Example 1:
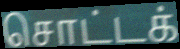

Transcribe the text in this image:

சொட்டக்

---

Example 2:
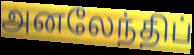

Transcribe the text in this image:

அனலேந்திப்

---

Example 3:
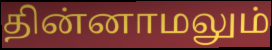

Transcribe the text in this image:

தின்னாமலும்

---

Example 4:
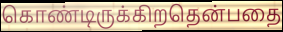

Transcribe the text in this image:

கொண்டிருக்கிறதென்பதை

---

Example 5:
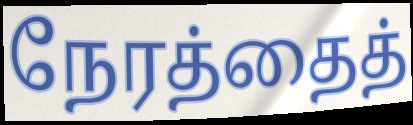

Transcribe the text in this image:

நேரத்தைத்